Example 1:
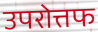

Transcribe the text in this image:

उपरोत्तफ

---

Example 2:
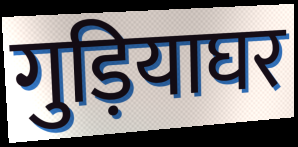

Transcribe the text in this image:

गुड़ियाघर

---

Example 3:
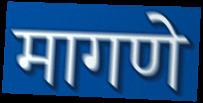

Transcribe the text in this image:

मागणे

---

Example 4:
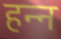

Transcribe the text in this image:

हन्न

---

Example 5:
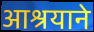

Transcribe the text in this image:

आश्रयाने